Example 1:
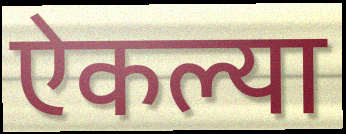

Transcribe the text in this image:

ऐकल्या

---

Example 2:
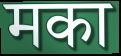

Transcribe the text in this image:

मका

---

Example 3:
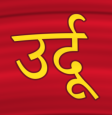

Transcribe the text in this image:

उर्दू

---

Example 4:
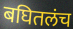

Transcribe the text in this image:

बघितलंच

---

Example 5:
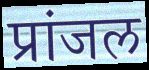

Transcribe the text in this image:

प्रांजल